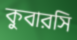
কুবারসি